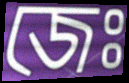
জেঃ